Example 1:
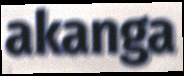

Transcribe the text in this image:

akanga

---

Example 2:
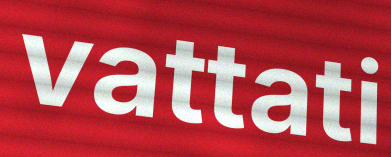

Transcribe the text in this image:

vattati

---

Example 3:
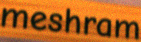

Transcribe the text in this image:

meshram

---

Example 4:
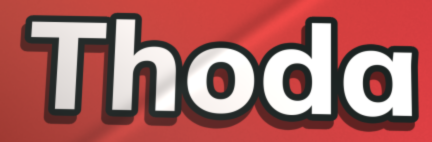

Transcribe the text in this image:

Thoda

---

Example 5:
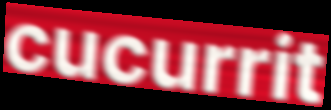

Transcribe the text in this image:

cucurrit